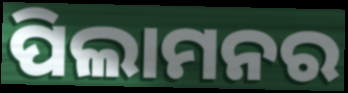
ପିଲାମନର